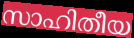
സാഹിതീയ